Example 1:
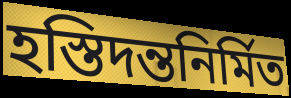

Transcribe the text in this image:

হস্তিদন্তনির্মিত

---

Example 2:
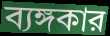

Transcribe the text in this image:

ব্যঙ্গকার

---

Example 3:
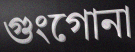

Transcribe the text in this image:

গুংগোনা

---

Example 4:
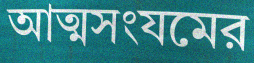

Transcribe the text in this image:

আত্মসংযমের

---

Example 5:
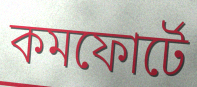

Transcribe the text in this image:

কমফোর্টে